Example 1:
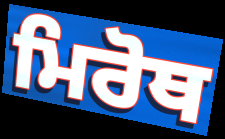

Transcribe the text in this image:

ਮਿਰੋਥ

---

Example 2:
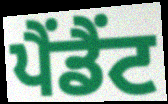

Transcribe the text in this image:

ਪੈਂਡੈਂਟ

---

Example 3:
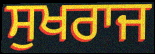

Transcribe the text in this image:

ਸੁਖਰਾਜ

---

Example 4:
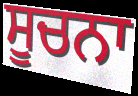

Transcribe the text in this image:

ਸੂਚਨਾ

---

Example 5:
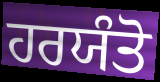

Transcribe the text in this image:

ਹਰਯੰਤੋ